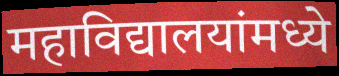
महाविद्यालयांमध्ये